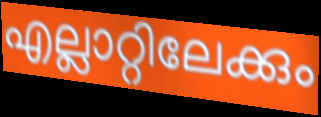
എല്ലാറ്റിലേക്കും